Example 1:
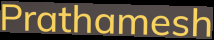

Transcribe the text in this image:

Prathamesh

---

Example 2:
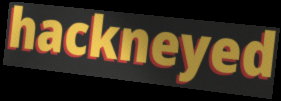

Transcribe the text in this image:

hackneyed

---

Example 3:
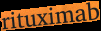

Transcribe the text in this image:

rituximab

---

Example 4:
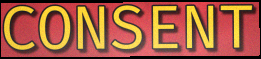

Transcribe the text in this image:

CONSENT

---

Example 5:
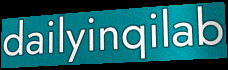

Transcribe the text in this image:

dailyinqilab